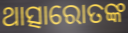
ଥାତ୍ସାରୋତଙ୍କ